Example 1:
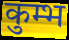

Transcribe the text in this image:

कुम्भ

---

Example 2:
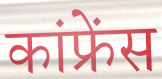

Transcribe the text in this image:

कांफ्रेंस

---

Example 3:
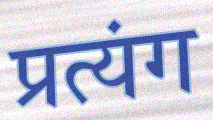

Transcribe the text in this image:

प्रत्यंग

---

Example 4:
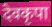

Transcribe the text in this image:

देवकृपा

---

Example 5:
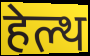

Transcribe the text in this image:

हेल्थ